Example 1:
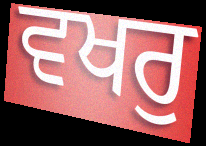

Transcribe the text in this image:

ਵਖਰੁ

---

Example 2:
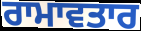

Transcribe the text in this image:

ਰਾਮਾਵਤਾਰ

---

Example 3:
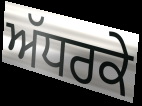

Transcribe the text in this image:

ਅੱਧਰਕੇ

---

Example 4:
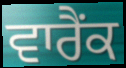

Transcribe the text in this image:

ਵਾਰੈਂਕ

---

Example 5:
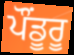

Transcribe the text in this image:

ਪੌਂਡੂਰੂ